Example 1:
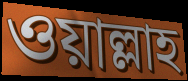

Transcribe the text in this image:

ওয়াল্লাহ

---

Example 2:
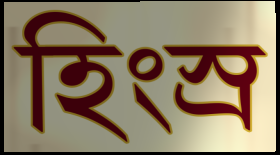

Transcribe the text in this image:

হিংস্র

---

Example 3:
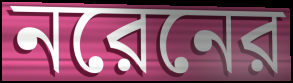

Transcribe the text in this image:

নরেনের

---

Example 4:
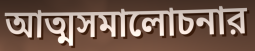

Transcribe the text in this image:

আত্মসমালোচনার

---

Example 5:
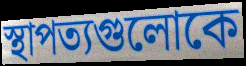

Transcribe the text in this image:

স্থাপত্যগুলোকে